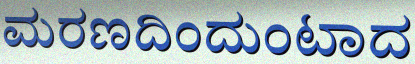
ಮರಣದಿಂದುಂಟಾದ